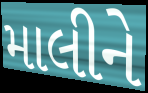
માલીને